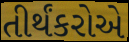
તીર્થંકરોએ